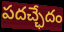
పదచ్ఛేదం